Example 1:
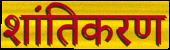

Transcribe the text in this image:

शांतिकरण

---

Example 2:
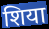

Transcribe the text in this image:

शिया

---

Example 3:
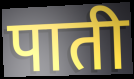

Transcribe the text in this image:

पाती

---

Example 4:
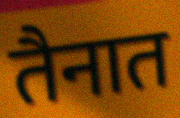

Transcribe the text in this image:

तैनात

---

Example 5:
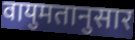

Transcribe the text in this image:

वायुमतानुसार